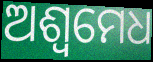
ଅଶ୍ୱମେଧ